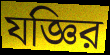
যজ্ঞির